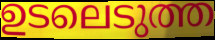
ഉടലെടുത്ത